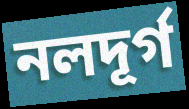
নলদূর্গ